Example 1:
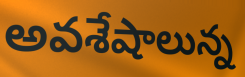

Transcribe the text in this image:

అవశేషాలున్న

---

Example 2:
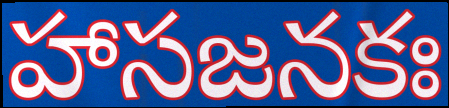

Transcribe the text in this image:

హాసజనకః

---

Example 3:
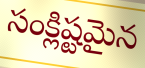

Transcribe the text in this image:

సంక్లిష్టమైన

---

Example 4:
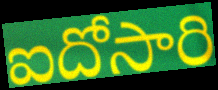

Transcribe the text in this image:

ఐదోసారి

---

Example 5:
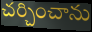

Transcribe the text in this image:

చర్చించాను